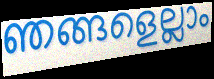
ഞങ്ങളെല്ലാം